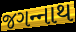
જગન્‍નાથ